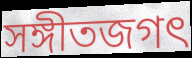
সঙ্গীতজগৎ